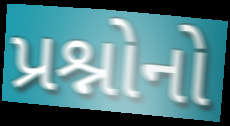
પ્રશ્નોનો